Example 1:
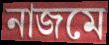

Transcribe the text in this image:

নাজমে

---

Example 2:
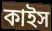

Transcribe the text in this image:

কাইস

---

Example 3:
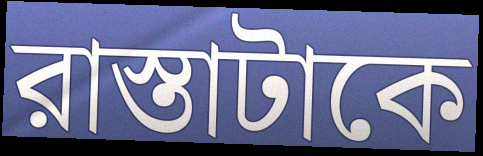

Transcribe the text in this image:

রাস্তাটাকে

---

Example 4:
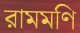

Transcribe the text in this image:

রামমণি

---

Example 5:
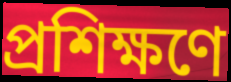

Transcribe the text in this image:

প্রশিক্ষণে